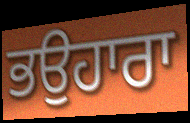
ਭਉਹਾਰਾ